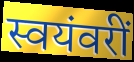
स्वयंवरीं